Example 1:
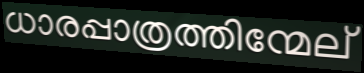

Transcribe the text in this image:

ധാരപ്പാത്രത്തിന്മേല്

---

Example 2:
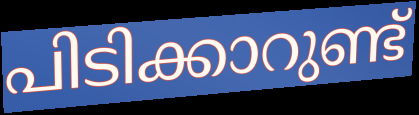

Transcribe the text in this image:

പിടിക്കാറുണ്ട്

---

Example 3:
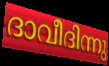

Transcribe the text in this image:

ദാവീദിന്നു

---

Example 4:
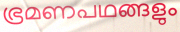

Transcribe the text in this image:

ഭ്രമണപഥങ്ങളും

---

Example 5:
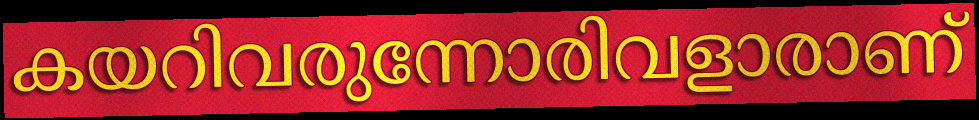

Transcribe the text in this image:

കയറിവരുന്നോരിവളാരാണ്